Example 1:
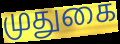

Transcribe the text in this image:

முதுகை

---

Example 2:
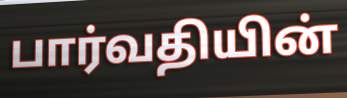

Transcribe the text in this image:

பார்வதியின்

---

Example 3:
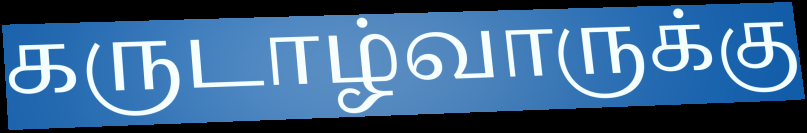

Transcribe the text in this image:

கருடாழ்வாருக்கு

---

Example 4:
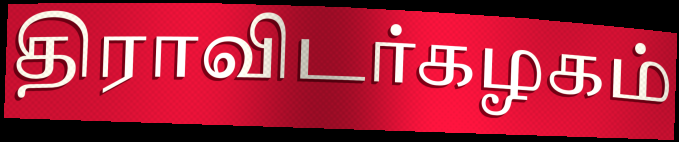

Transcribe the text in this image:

திராவிடர்கழகம்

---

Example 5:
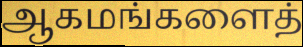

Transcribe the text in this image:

ஆகமங்களைத்